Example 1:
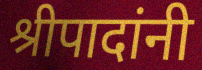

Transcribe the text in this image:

श्रीपादांनी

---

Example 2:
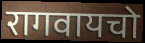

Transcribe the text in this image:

रागवायचो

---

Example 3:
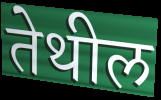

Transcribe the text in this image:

तेथील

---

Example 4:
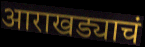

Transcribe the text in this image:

आराखड्याचं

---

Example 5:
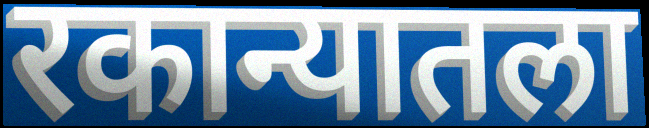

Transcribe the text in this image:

रकान्यातला